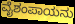
ವೈಶಂಪಾಯನು